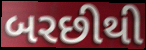
બરછીથી